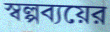
স্বল্পব্যয়ের